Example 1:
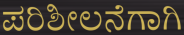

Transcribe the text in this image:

ಪರಿಶೀಲನೆಗಾಗಿ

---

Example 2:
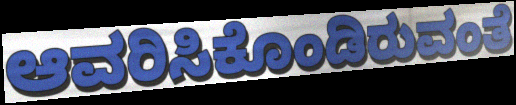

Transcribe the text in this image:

ಆವರಿಸಿಕೊಂಡಿರುವಂತೆ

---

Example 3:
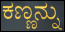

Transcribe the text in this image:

ಕಣ್ಣನ್ನು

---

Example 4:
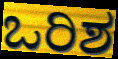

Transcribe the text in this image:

ಒರಿಶ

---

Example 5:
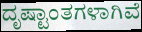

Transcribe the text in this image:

ದೃಷ್ಟಾಂತಗಳಾಗಿವೆ